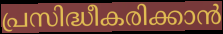
പ്രസിദ്ധീകരിക്കാൻ